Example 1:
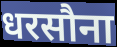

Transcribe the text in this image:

धरसौना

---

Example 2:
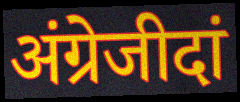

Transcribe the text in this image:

अंग्रेजीदां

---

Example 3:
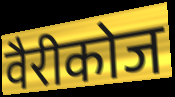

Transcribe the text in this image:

वैरीकोज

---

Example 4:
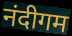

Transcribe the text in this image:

नंदीगम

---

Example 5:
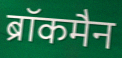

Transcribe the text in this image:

ब्रॉकमैन